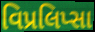
વિપ્રલિપ્સા